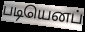
படியெனப்